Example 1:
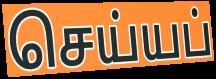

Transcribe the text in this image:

செய்யப்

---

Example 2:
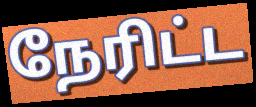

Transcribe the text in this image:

நேரிட்ட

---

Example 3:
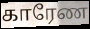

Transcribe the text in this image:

காரேண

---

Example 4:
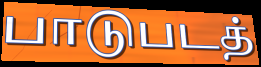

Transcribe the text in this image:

பாடுபடத்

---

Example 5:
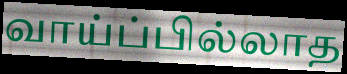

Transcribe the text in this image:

வாய்ப்பில்லாத